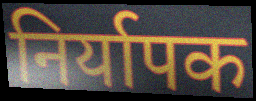
निर्यापक